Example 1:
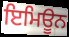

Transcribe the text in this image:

ਇਮਿਊਨ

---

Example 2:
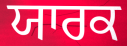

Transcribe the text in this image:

ਯਾਰਕ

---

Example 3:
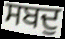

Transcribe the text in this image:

ਸਬਦੁ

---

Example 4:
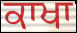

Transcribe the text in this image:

ਕਾਖਾ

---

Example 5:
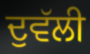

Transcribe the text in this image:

ਦੁਵੱਲੀ